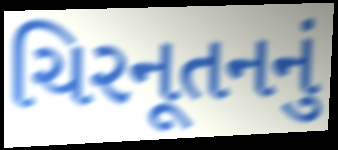
ચિરનૂતનનું